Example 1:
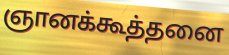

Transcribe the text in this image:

ஞானக்கூத்தனை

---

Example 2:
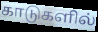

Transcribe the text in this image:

காடுகளில்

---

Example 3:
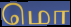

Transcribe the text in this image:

மொ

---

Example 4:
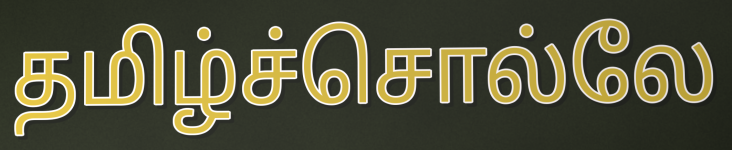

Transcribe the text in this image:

தமிழ்ச்சொல்லே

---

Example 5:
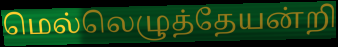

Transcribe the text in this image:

மெல்லெழுத்தேயன்றி